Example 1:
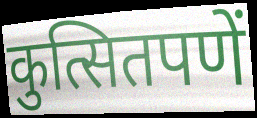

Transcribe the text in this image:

कुत्सितपणें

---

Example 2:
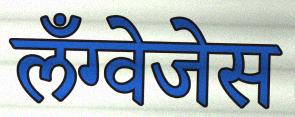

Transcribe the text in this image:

लँग्वेजेस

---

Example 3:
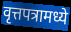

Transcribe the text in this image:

वृत्तपत्रामध्ये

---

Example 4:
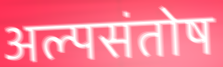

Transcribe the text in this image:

अल्पसंतोष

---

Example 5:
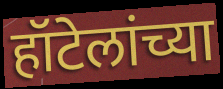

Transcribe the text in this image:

हॉटेलांच्या